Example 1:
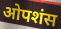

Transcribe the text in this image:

ओपशंस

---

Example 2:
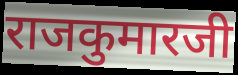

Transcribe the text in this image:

राजकुमारजी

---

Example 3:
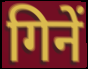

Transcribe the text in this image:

गिनें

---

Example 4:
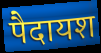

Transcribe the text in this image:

पैदायश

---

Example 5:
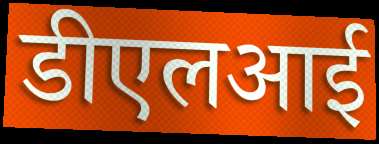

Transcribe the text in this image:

डीएलआई